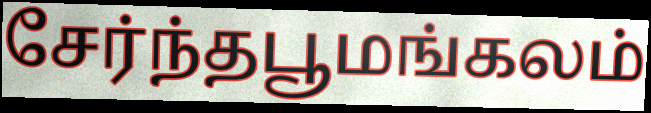
சேர்ந்தபூமங்கலம்